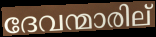
ദേവന്മാരില്